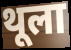
थूला